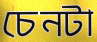
চেনটা